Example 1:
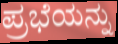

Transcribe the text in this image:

ಪ್ರಭೆಯನ್ನು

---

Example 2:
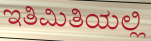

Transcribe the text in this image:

ಇತಿಮಿತಿಯಲ್ಲಿ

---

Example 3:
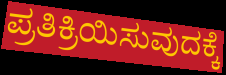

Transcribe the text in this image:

ಪ್ರತಿಕ್ರಿಯಿಸುವುದಕ್ಕೆ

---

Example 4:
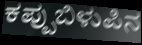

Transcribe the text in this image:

ಕಪ್ಪುಬಿಳುಪಿನ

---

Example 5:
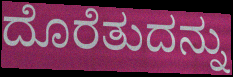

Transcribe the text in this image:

ದೊರೆತುದನ್ನು